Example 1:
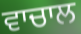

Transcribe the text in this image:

ਵਾਚਾਲ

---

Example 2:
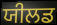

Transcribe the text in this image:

ਯੀਲਡ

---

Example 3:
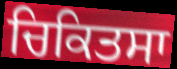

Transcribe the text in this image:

ਚਿਕਿਤਸਾ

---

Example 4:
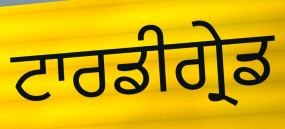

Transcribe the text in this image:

ਟਾਰਡੀਗ੍ਰੇਡ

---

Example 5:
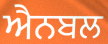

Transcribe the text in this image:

ਐਨਬਲ